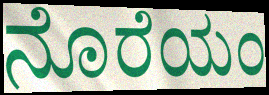
ನೊರೆಯಂ